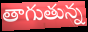
తాగుతున్న